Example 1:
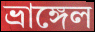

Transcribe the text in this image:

ভ্রাঙ্গেল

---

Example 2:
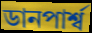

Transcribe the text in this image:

ডানপার্শ্ব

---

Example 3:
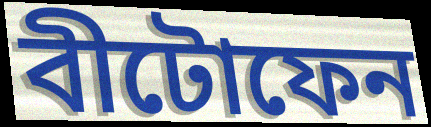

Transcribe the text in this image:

বীটোফেন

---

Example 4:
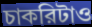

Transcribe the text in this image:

চাকরিটাও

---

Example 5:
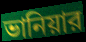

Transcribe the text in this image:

ভানিয়ার